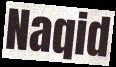
Naqid